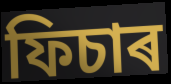
ফিচাৰ